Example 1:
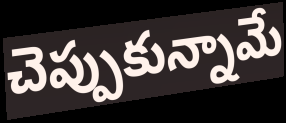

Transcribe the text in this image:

చెప్పుకున్నామే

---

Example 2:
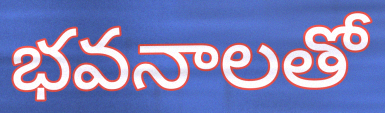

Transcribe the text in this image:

భవనాలతో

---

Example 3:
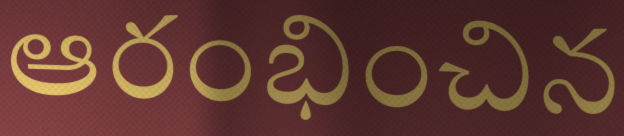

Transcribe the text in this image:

ఆరంభించిన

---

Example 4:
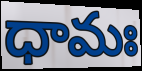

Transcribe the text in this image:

ధామః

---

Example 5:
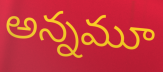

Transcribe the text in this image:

అన్నమూ